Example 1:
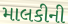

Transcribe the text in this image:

માલકીની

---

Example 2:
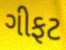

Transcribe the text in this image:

ગીફટ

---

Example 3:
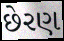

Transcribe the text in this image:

છેરણ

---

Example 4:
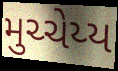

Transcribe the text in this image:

મુચ્ચેય્ય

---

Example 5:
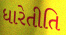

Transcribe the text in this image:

ધારેતીતિ